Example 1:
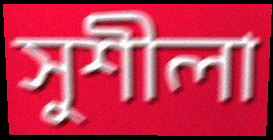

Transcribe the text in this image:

সুশীলা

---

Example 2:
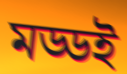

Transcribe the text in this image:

মড্ডই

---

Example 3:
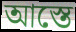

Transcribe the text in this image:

আস্তে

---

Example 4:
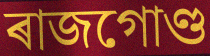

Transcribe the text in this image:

ৰাজগোণ্ড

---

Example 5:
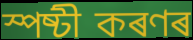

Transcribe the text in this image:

স্পষ্টীকৰণৰ